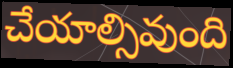
చేయాల్సివుంది